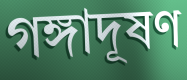
গঙ্গাদূষণ